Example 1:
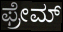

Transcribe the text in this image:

ಫ್ರೇಮ್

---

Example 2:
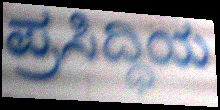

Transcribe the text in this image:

ಪ್ರಸಿದ್ಧಿಯ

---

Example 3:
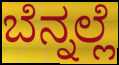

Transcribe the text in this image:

ಬೆನ್ನಲ್ಲೆ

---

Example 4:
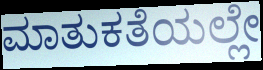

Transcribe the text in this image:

ಮಾತುಕತೆಯಲ್ಲೇ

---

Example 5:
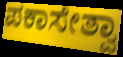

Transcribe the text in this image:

ಪಕಾಸೇತ್ವಾ